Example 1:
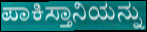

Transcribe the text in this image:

ಪಾಕಿಸ್ತಾನಿಯನ್ನು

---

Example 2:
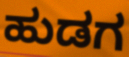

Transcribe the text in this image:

ಹುಡಗ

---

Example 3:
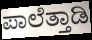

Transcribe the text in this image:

ಪಾಲೆತ್ತಾಡಿ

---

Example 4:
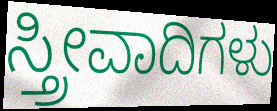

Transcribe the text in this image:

ಸ್ತ್ರೀವಾದಿಗಳು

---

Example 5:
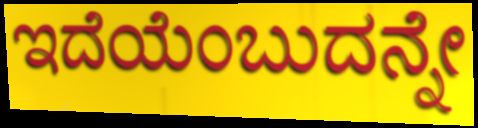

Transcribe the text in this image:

ಇದೆಯೆಂಬುದನ್ನೇ